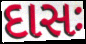
દાસઃ